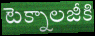
టెక్నాలజీకి